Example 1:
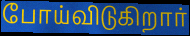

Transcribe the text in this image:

போய்விடுகிறார்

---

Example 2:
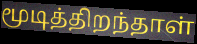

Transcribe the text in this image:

மூடித்திறந்தாள்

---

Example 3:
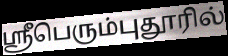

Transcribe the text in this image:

ஸ்ரீபெரும்புதூரில்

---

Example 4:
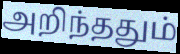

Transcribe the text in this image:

அறிந்ததும்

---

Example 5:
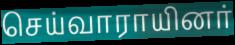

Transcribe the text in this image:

செய்வாராயினர்